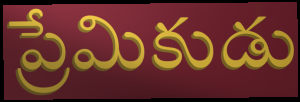
ప్రేమికుడు